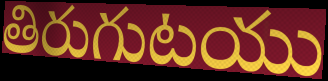
తిరుగుటయు